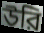
উরি